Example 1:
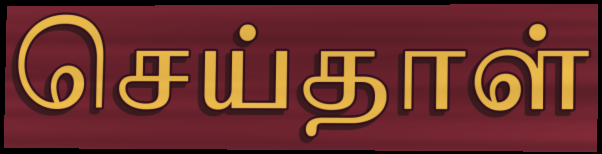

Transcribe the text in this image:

செய்தாள்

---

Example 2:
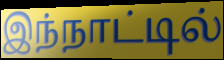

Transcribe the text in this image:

இந்நாட்டில்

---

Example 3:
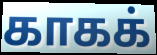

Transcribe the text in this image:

காகக்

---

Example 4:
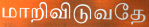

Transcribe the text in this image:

மாறிவிடுவதே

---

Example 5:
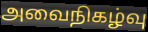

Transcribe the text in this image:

அவைநிகழ்வு